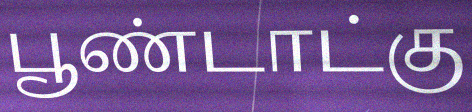
பூண்டாட்கு